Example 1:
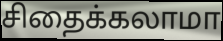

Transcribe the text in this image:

சிதைக்கலாமா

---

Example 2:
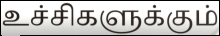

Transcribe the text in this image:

உச்சிகளுக்கும்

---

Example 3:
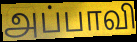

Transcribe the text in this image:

அப்பாவி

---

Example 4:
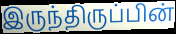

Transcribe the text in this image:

இருந்திருப்பின்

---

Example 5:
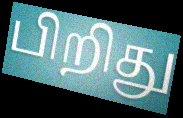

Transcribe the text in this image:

பிறிது